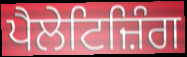
ਪੈਲੇਟਿਜ਼ਿੰਗ